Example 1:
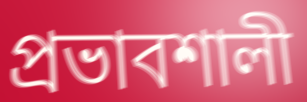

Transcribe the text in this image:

প্ৰভাবশালী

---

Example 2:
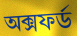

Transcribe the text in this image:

অক্সফৰ্ড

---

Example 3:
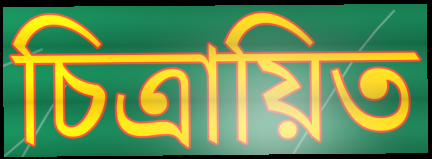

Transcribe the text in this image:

চিত্ৰায়িত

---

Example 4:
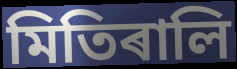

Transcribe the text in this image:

মিতিৰালি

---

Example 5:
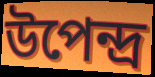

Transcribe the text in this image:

উপেন্দ্ৰ